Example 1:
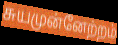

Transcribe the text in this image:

சுயமுன்னேற்றம்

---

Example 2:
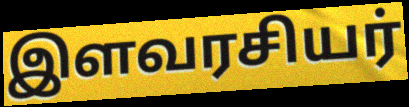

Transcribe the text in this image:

இளவரசியர்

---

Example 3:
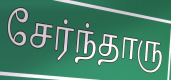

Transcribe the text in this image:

சேர்ந்தாரு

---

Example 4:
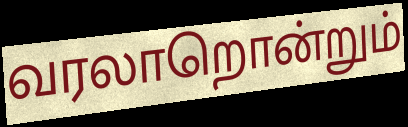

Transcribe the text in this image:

வரலாறொன்றும்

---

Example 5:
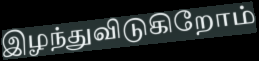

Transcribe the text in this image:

இழந்துவிடுகிறோம்